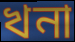
খনা